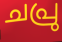
ചപ്രു